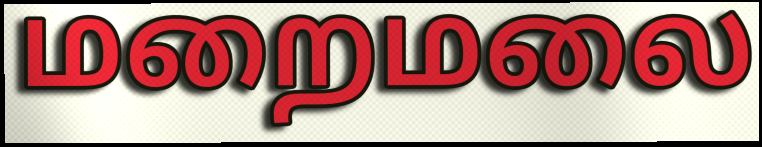
மறைமலை